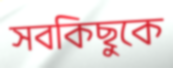
সবকিছুকে